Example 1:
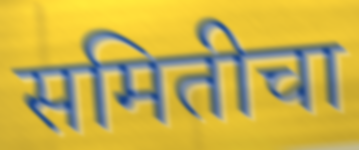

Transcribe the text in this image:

समितीचा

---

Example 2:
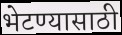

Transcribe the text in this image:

भेटण्यासाठी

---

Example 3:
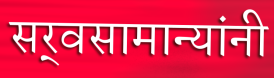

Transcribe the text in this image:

सर्वसामान्यांनी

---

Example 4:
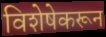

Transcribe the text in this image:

विशेषेकरून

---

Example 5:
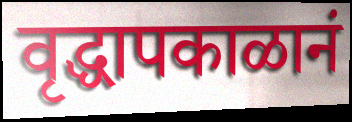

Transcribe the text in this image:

वृद्धापकाळानं